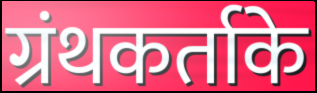
ग्रंथकर्ताके